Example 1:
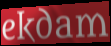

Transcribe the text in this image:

ekdam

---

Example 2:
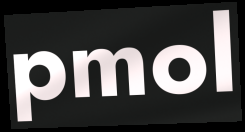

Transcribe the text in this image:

pmol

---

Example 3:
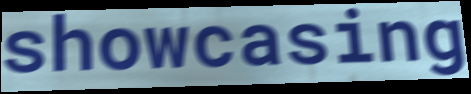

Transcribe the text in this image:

showcasing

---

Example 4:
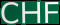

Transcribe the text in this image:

CHF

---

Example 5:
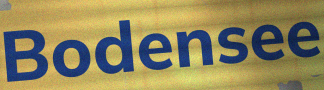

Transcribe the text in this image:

Bodensee